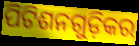
ପିଟିଶନଗୁଡ଼ିକର